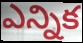
ఎన్నిక